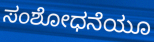
ಸಂಶೋಧನೆಯೂ